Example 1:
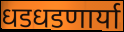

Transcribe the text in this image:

धडधडणार्या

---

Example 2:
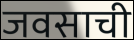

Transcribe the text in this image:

जवसाची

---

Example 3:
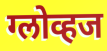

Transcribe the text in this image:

ग्लोव्हज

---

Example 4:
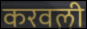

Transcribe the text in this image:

करवली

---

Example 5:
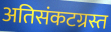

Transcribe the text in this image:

अतिसंकटग्रस्त